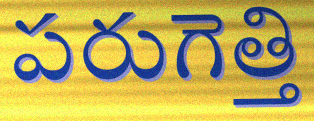
పరుగెత్తి